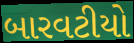
બારવટીયો